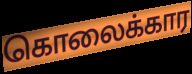
கொலைக்கார